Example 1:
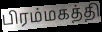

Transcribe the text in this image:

பிரம்மகத்தி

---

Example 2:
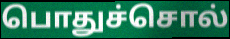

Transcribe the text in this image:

பொதுச்சொல்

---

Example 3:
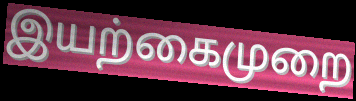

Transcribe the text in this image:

இயற்கைமுறை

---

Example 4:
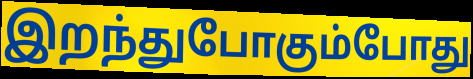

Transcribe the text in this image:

இறந்துபோகும்போது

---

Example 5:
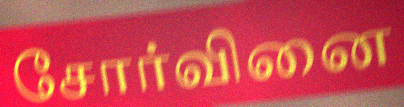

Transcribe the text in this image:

சோர்வினை